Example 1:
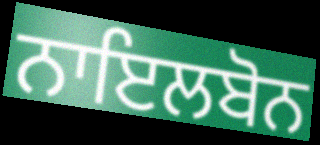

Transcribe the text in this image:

ਨਾਇਲਬੋਨ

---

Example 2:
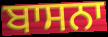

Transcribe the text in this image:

ਬਾਸਨਾ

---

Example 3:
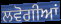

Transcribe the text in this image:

ਲਵੋਗੀਆਂ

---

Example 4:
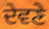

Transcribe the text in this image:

ਦੇਵਣੇ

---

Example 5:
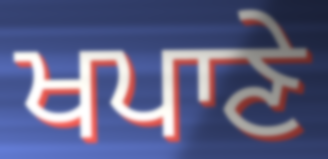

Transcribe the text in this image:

ਖਪਾਣੇ